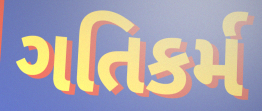
ગતિકર્મ